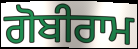
ਗੋਬੀਰਾਮ